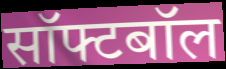
सॉफ्टबॉल